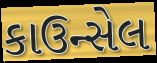
કાઉન્સેલ